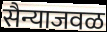
सैन्याजवळ